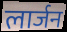
लार्जन